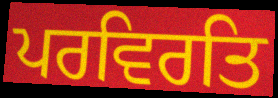
ਪਰਵਿਰਤਿ